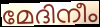
മേദിനീം